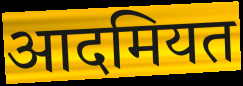
आदमियत